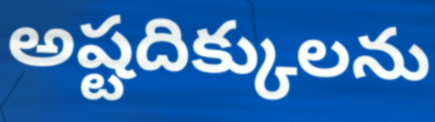
అష్టదిక్కులను